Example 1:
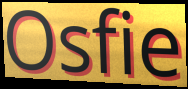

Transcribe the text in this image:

Osfie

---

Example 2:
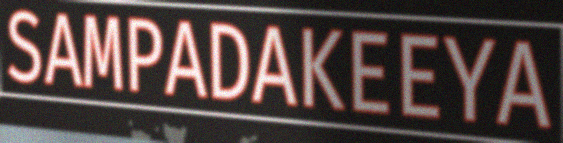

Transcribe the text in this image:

SAMPADAKEEYA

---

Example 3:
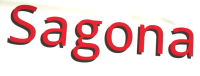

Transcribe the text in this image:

Sagona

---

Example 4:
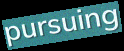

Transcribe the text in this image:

pursuing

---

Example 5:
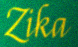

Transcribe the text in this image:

Zika